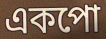
একপো